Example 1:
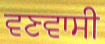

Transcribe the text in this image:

ਵਣਵਾਸੀ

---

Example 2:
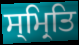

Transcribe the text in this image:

ਸ੍ਮ੍ਰਿਤਿ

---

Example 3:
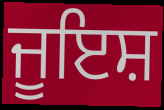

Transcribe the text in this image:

ਜੂਇਸ਼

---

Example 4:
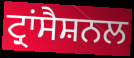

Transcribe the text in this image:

ਟ੍ਰਾਂਸੈਸ਼ਨਲ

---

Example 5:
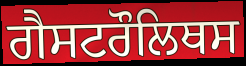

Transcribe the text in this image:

ਗੈਸਟਰੌਲਿਥਸ